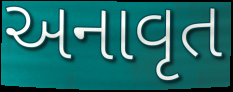
અનાવૃત